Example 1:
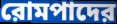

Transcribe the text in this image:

রোমপাদের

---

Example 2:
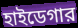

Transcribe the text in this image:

হাইডেগার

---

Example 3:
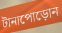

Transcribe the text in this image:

টানাপোড়োন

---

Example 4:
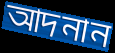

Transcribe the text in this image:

আদনান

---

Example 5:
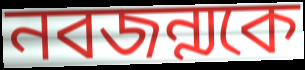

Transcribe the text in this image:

নবজন্মকে